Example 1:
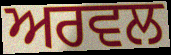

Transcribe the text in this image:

ਅਰਵਲ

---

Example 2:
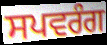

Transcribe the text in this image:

ਸਪਵਰੰਗ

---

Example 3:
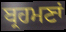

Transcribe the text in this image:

ਬ੍ਰਹਮਣਾਂ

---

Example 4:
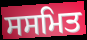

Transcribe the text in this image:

ਸਸਮਿਤ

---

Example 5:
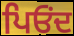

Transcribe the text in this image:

ਪਿਓਂਦ